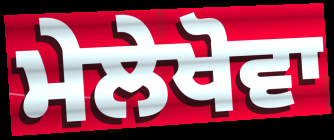
ਮੇਲੇਖੋਵਾ